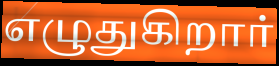
எழுதுகிறார்